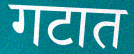
गटात